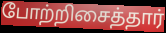
போற்றிசைத்தார்